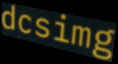
dcsimg